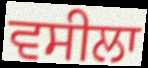
ਵਸੀਲਾ